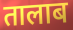
तालाब